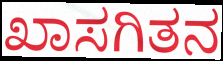
ಖಾಸಗಿತನ